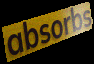
absorbs